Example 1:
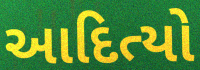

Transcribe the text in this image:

આદિત્યો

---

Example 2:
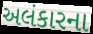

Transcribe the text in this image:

અલંકારના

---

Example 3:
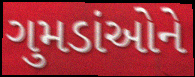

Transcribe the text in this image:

ગુમડાંઓને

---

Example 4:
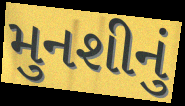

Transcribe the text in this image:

મુનશીનું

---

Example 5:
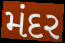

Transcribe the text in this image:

મંદર